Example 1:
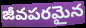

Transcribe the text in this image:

జీవపరమైన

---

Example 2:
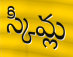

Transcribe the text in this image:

స్కీమ్ల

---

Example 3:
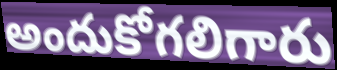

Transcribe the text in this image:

అందుకోగలిగారు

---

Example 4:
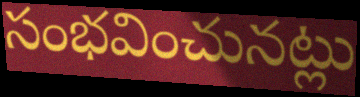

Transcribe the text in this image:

సంభవించునట్లు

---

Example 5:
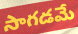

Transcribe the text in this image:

సాగడమే